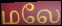
மலே